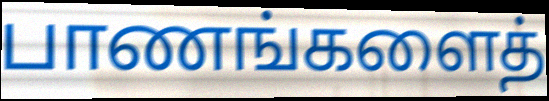
பாணங்களைத்